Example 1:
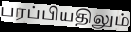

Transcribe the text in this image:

பரப்பியதிலும்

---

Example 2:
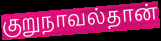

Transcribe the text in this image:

குறுநாவல்தான்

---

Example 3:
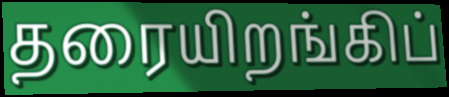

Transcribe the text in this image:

தரையிறங்கிப்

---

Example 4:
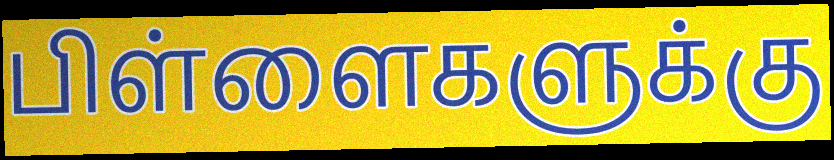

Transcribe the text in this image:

பிள்ளைகளுக்கு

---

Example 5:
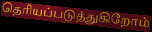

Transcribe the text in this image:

தெரியப்படுத்துகிறோம்